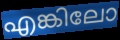
എങ്കിലോ